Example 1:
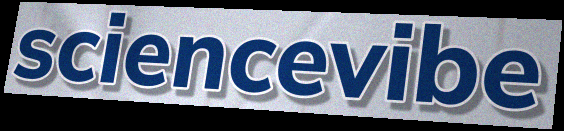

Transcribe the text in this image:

sciencevibe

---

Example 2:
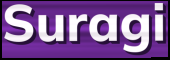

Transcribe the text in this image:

Suragi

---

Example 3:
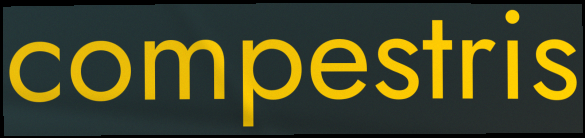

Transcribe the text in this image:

compestris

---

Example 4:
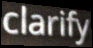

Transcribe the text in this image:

clarify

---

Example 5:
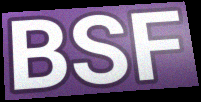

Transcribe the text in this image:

BSF